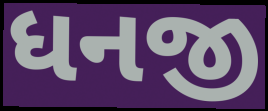
ધનજી